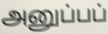
அனுப்பப்